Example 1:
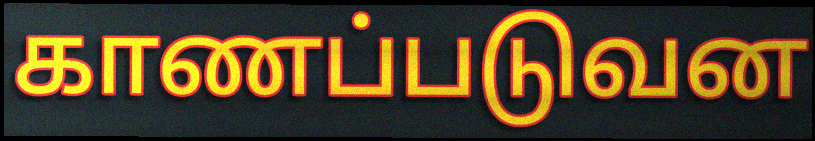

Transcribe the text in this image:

காணப்படுவன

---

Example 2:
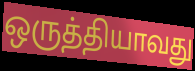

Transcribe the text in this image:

ஒருத்தியாவது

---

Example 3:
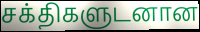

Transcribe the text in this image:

சக்திகளுடனான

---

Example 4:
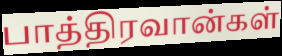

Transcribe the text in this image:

பாத்திரவான்கள்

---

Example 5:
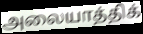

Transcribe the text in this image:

அலையாத்திக்